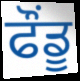
ਫੌਂਡੂ